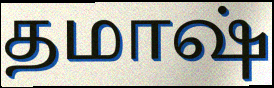
தமாஷ்